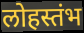
लोहस्तंभ